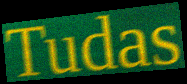
Tudas